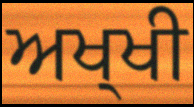
ਅਖ੍ਖੀ